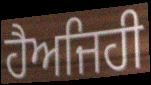
ਹੈਅਜਿਹੀ